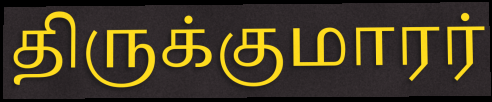
திருக்குமாரர்